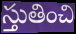
స్తుతించి